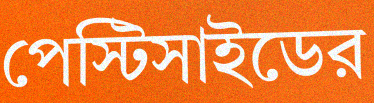
পেস্টিসাইডের